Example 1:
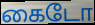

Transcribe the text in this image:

கைடோ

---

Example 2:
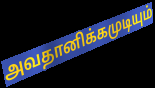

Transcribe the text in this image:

அவதானிக்கமுடியும்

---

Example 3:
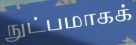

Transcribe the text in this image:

நுட்பமாகக்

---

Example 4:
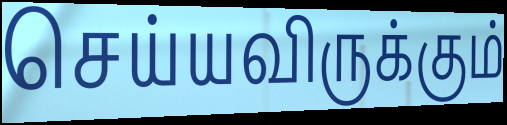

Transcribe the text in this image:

செய்யவிருக்கும்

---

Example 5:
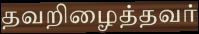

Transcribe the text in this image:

தவறிழைத்தவர்